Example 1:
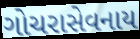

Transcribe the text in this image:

ગોચરાસેવનાય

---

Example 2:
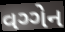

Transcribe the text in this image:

વગ્ગેન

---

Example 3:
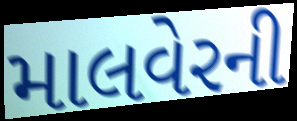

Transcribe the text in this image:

માલવેરની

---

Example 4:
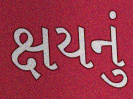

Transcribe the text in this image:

ક્ષયનું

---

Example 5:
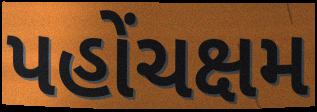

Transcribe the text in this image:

પહોંચક્ષમ